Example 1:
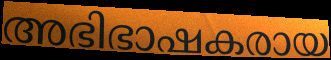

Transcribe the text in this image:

അഭിഭാഷകരായ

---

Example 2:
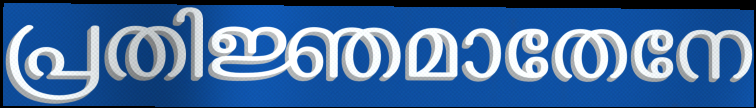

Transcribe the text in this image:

പ്രതിജ്ഞമാതേനേ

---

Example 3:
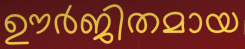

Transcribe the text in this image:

ഊർജിതമായ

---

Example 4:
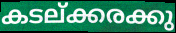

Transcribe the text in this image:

കടല്ക്കരക്കു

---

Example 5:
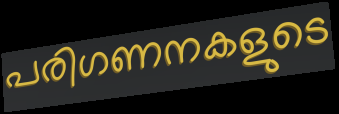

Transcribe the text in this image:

പരിഗണനകളുടെ